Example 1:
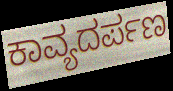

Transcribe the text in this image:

ಕಾವ್ಯದರ್ಪಣ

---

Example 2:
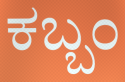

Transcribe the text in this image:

ಕಬ್ಬಂ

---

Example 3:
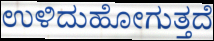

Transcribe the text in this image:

ಉಳಿದುಹೋಗುತ್ತದೆ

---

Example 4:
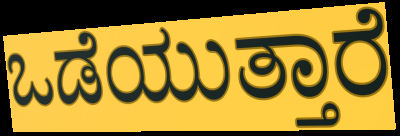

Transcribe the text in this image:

ಒಡೆಯುತ್ತಾರೆ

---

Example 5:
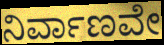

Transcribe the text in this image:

ನಿರ್ವಾಣವೇ